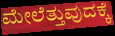
ಮೇಲೆತ್ತುವುದಕ್ಕೆ